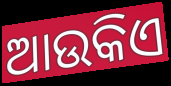
ଆଉକିଏ